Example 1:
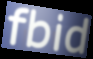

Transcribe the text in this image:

fbid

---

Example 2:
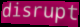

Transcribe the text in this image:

disrupt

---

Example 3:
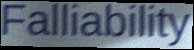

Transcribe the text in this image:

Falliability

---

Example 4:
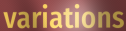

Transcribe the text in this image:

variations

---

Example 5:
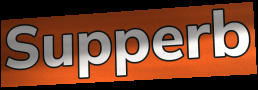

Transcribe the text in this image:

Supperb